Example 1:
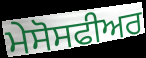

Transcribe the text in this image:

ਮੇਸੋਸਫੀਅਰ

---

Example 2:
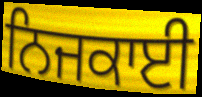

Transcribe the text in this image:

ਨਿਜਕਾਈ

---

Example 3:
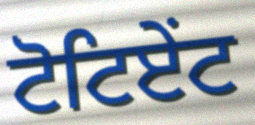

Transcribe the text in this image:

ਟੋਟਿਏਂਟ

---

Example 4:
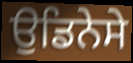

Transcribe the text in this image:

ਉਡਿਨੇਸੇ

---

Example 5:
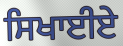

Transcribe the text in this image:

ਸਿਖਾਈਏ